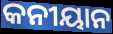
କନୀୟାନ